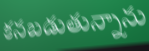
కనబడుతున్నాను